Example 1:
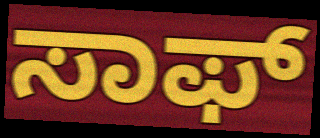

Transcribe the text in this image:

ಸಾಫ್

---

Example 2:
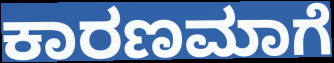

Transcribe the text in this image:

ಕಾರಣಮಾಗೆ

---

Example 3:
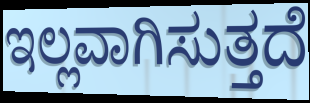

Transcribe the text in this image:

ಇಲ್ಲವಾಗಿಸುತ್ತದೆ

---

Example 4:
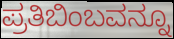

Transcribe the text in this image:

ಪ್ರತಿಬಿಂಬವನ್ನೂ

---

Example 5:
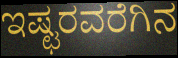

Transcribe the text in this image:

ಇಷ್ಟರವರೆಗಿನ